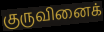
குருவினைக்